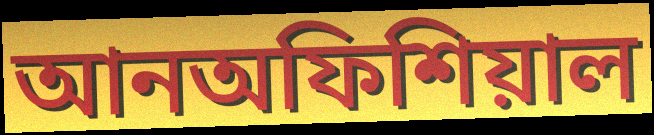
আনঅফিশিয়াল